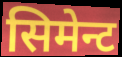
सिमेन्ट